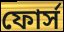
ফোর্স